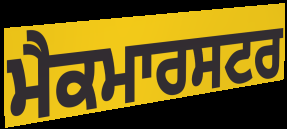
ਮੈਕਮਾਰਸਟਰ